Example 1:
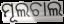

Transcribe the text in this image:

ମୂଲଚାଲ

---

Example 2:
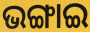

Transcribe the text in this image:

ଭଙ୍ଗାଇ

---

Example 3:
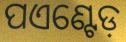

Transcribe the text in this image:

ପଏଣ୍ଟେଡ଼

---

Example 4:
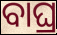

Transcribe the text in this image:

ବାଘ୍ର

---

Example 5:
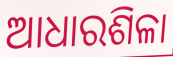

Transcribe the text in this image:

ଆଧାରଶିଳା